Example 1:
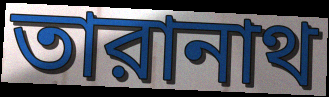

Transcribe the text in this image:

তারানাথ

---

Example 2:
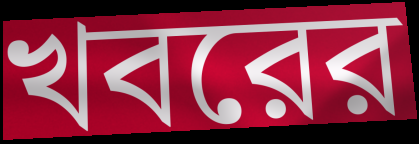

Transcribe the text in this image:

খবরের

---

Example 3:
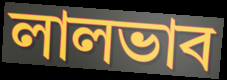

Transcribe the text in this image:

লালভাব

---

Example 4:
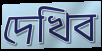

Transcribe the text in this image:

দেখিব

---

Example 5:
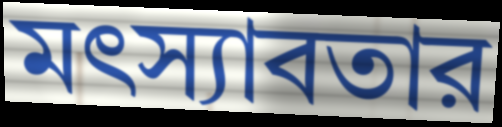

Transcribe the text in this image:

মৎস্যাবতার